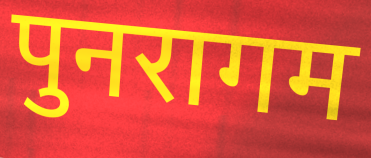
पुनरागम